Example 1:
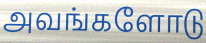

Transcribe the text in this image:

அவங்களோடு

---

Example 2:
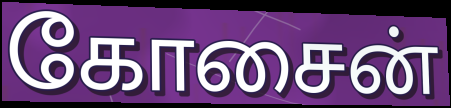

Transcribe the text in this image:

கோசைன்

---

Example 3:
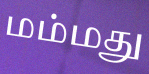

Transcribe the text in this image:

மம்மது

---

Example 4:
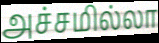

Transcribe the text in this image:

அச்சமில்லா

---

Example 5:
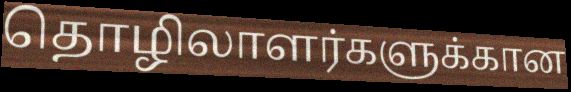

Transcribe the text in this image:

தொழிலாளர்களுக்கான